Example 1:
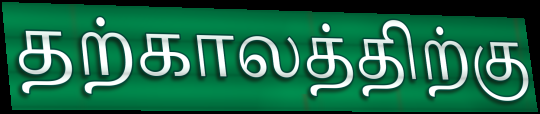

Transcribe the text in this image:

தற்காலத்திற்கு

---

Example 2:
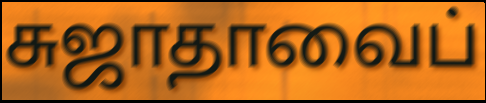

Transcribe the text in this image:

சுஜாதாவைப்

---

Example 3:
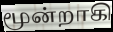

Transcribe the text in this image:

மூன்றாகி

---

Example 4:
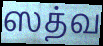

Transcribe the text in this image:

ஸத்வ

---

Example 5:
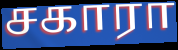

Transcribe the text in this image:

சகாரா